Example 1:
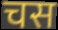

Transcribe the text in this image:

चस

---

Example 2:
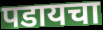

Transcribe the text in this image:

पडायचा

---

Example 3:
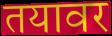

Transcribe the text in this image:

तयावर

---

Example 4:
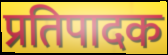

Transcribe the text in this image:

प्रतिपादक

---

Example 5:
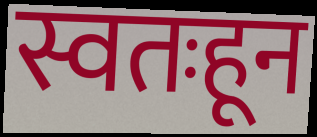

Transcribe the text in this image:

स्वतःहून